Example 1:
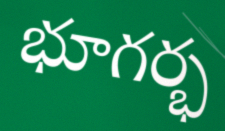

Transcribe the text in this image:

భూగర్భ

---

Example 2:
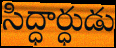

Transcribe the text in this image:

సిద్ధార్ధుడు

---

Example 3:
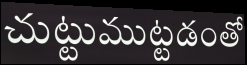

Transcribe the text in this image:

చుట్టుముట్టడంతో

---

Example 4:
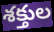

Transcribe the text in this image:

శక్తుల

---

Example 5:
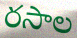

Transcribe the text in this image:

రసాల